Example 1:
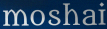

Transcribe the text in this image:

moshai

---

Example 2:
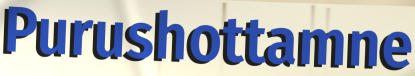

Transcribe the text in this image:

Purushottamne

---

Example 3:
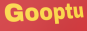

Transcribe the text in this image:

Gooptu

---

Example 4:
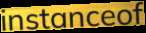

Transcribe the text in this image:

instanceof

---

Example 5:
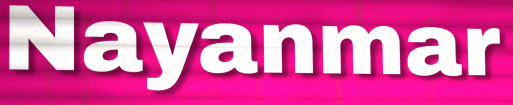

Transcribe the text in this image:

Nayanmar